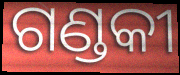
ଗଣ୍ଡକୀ